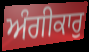
ਅੰਗੀਕਾਰੁ